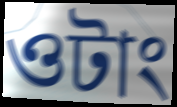
ওটাং